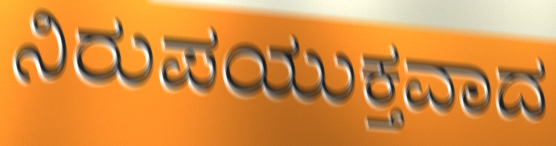
ನಿರುಪಯುಕ್ತವಾದ